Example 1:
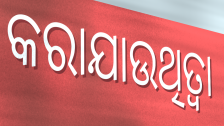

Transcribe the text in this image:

କରାଯାଉଥିତ୍ବା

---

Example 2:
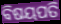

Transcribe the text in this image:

ବିଷୟପତି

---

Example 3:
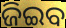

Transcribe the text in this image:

ଜିଇବ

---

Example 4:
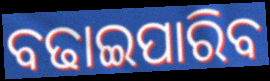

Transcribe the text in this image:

ବଢାଇପାରିବ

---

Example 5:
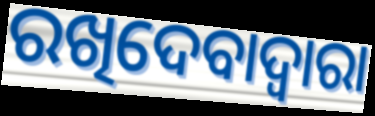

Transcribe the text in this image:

ରଖିଦେବାଦ୍ୱାରା